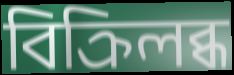
বিক্রিলব্ধ